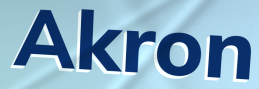
Akron